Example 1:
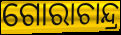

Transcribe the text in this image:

ଗୋରାଚାନ୍ଦ୍ର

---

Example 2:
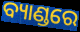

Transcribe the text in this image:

ବ୍ୟାଣ୍ଡରେ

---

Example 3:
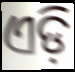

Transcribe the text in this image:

ଏଡ଼ି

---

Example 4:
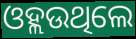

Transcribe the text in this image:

ଓହ୍ଲଉଥିଲେ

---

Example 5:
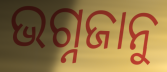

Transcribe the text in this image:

ଭଗ୍ନଜାନୁ